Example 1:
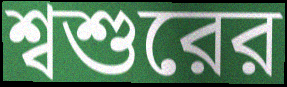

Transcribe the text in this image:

শ্বশুরের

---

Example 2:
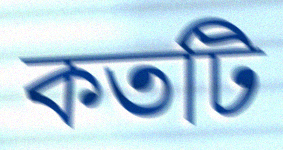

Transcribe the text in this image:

কতটি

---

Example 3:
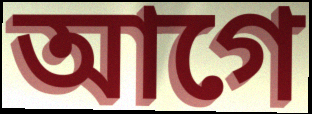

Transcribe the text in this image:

আগে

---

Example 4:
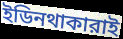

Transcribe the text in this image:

ইডিনথাকারাই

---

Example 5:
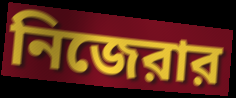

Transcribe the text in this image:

নিজেরার